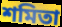
শমিতা